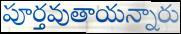
పూర్తవుతాయన్నారు